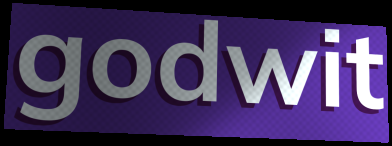
godwit